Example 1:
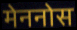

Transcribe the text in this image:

मेननोस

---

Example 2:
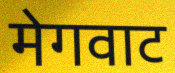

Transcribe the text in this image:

मेगवाट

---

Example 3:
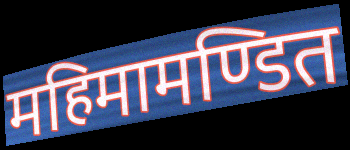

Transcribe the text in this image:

महिमामण्डित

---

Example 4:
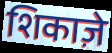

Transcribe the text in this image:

शिकाज़े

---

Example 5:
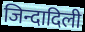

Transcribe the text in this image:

जिन्दादिली